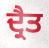
ਦ੍ਰੈਤ